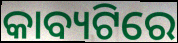
କାବ୍ୟଟିରେ